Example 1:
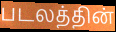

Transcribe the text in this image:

படலத்தின்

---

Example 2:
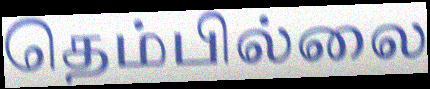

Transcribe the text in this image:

தெம்பில்லை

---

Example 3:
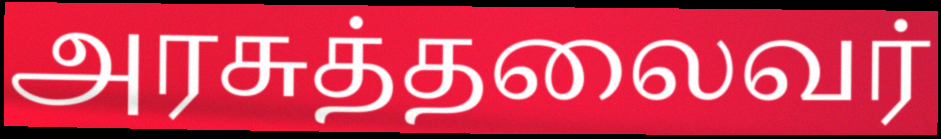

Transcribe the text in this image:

அரசுத்தலைவர்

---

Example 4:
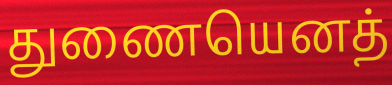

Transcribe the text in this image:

துணையெனத்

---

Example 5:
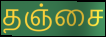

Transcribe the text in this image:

தஞ்சை